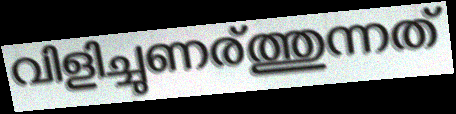
വിളിച്ചുണര്ത്തുന്നത്